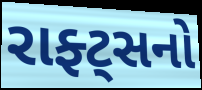
રાફ્ટ્સનો